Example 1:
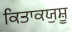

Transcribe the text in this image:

ਕਿਤਾਕਯੁਸ਼ੂ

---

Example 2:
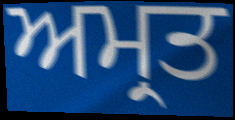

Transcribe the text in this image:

ਅਮ੍ਰਤ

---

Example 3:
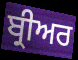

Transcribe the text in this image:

ਬ੍ਰੀਅਰ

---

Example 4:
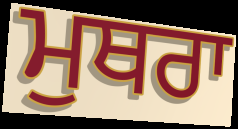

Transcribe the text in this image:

ਮੁਥਰਾ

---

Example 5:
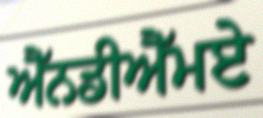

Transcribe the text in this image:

ਐੱਨਡੀਐੱਮਏ